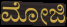
ಮೋಜಿ